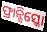
ଫ୍ରାନ୍ସିସ୍କୋ